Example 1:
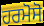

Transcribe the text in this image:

ਹਰਮੋਸੋ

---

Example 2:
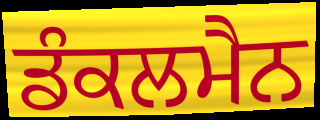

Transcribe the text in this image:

ਡੰਕਲਮੈਨ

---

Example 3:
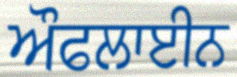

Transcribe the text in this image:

ਔਫਲਾਈਨ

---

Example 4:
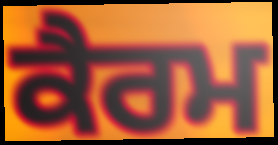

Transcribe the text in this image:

ਕੈਰਮ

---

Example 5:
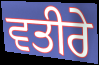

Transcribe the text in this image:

ਵਤੀਰੇ